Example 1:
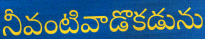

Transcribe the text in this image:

నీవంటివాడొకడును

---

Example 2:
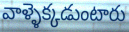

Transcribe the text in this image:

వాళ్ళెక్కడుంటారు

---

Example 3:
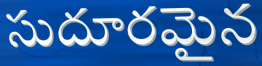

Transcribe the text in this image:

సుదూరమైన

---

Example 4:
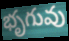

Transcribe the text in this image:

భృగువు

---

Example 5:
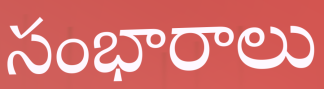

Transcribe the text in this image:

సంభారాలు